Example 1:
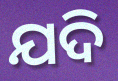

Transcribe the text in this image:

ଯଦି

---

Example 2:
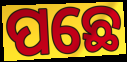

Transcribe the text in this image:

ପଛେ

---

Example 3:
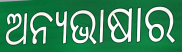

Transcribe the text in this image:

ଅନ୍ୟଭାଷାର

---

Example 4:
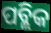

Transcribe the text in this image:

ପବ୍ଲିକ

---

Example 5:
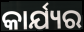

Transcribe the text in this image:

କାର୍ଯ୍ୟର